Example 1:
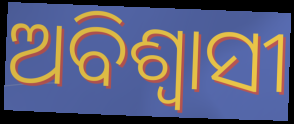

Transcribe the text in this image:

ଅବିଶ୍ଵାସୀ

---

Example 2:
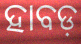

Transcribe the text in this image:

ହାବଡ଼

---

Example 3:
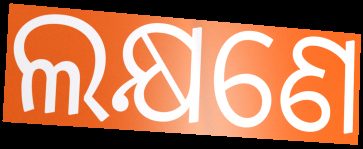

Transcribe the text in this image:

ଲକ୍ଷଣେ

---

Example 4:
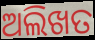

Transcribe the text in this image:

ଅଲିଖତ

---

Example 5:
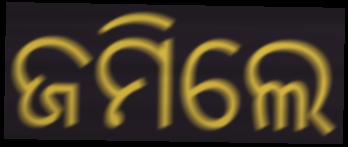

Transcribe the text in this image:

ଜମିଲେ